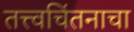
तत्त्वचिंतनाचा